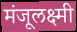
मंजूलक्ष्मी